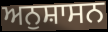
ਅਨੁਸ਼ਾਸਨ